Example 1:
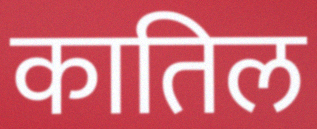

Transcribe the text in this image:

कातिल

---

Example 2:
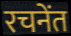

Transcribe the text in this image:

रचनेंत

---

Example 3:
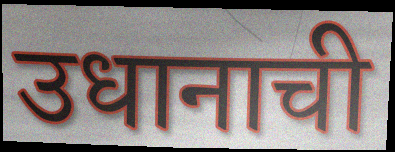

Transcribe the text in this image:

उधानाची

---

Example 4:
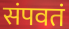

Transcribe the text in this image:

संपवतं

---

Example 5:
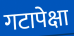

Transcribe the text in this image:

गटापेक्षा